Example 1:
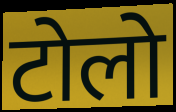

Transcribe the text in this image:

टोलो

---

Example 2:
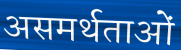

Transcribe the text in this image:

असमर्थताओं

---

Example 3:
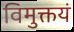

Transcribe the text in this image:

विमुक्तयं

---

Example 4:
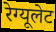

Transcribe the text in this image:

रेग्यूलेट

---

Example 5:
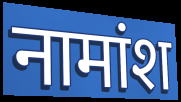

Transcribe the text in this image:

नामांश